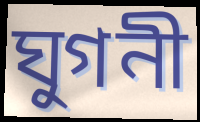
ঘুগনী